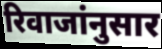
रिवाजांनुसार